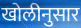
खोलीनुसार